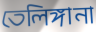
তেলিঙ্গানা